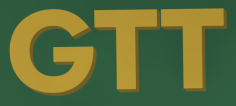
GTT